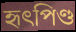
হৃৎপিণ্ড